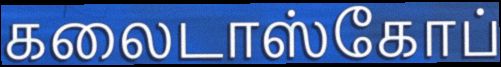
கலைடாஸ்கோப்